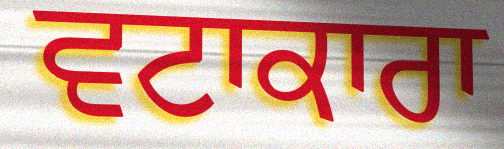
ਵਟਾਕਾਰਾ